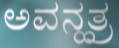
ಅವನ್ಹತ್ರ